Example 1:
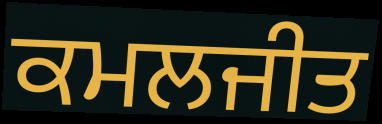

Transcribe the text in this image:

ਕਮਲਜੀਤ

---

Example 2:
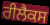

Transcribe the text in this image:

ਰੀਲੈਕਸ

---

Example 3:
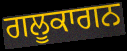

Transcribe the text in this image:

ਗਲੂਕਾਗਨ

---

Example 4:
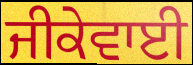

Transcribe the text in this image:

ਜੀਕੇਵਾਈ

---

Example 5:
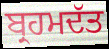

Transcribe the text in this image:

ਬ੍ਰਹਮਦੱਤ